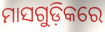
ମାସଗୁଡ଼ିକରେ